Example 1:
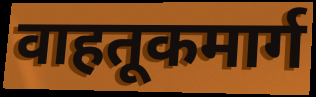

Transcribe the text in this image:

वाहतूकमार्ग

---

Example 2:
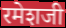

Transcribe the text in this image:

रमेशजी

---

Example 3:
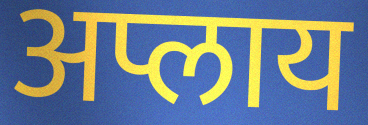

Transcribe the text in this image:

अप्लाय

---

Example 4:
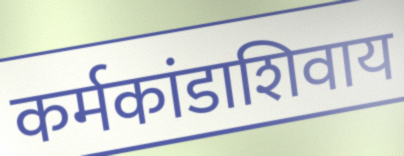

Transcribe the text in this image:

कर्मकांडाशिवाय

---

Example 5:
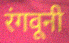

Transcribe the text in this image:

रंगवूनी